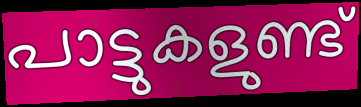
പാട്ടുകളുണ്ട്